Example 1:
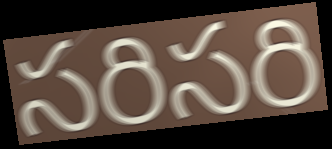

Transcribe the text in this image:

సరిసరి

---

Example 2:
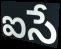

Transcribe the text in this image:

ఐసే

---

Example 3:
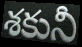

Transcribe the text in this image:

శకునీ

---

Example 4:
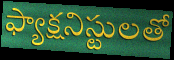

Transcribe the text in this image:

ఫ్యాక్షనిస్టులతో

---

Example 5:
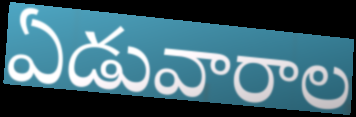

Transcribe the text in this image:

ఏడువారాల